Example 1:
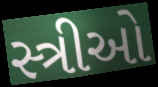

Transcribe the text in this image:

સ્‍ત્રીઓ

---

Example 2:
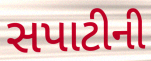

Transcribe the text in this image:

સપાટીની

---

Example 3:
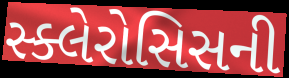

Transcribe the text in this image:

સ્ક્લેરોસિસની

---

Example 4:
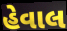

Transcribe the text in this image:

હેવાલ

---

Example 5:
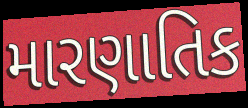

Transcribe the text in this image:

મારણાતિક